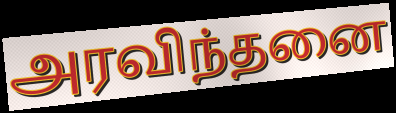
அரவிந்தனை